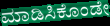
ಮಾಡಿಸಿಕೊಂಡೇ